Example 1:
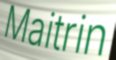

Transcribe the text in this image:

Maitrin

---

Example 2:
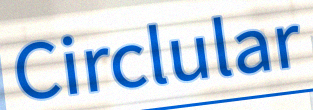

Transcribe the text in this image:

Circlular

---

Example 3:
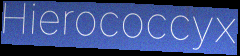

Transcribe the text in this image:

Hierococcyx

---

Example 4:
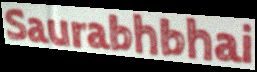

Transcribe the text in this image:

Saurabhbhai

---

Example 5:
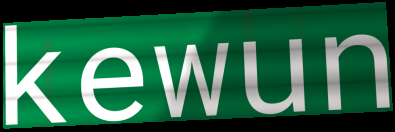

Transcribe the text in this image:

kewun